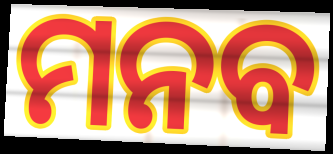
ମନବ